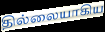
தில்லையாகிய